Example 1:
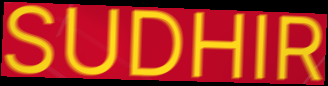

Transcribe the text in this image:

SUDHIR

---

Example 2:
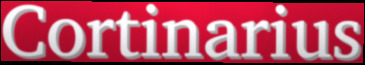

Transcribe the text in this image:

Cortinarius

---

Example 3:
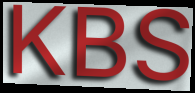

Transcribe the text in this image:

KBS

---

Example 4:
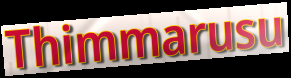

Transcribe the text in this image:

Thimmarusu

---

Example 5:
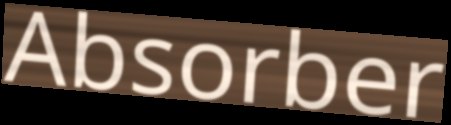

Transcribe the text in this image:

Absorber